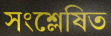
সংশ্লেষিত